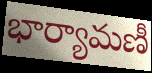
భార్యామణీ